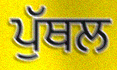
ਪੁੱਥਲ